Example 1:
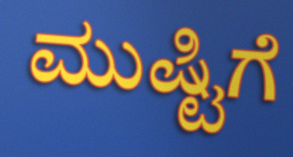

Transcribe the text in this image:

ಮುಷ್ಟಿಗೆ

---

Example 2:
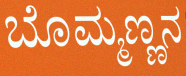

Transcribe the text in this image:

ಬೊಮ್ಮಣ್ಣನ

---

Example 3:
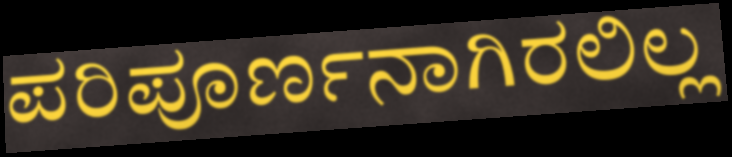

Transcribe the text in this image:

ಪರಿಪೂರ್ಣನಾಗಿರಲಿಲ್ಲ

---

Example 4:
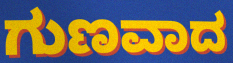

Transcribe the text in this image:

ಗುಣವಾದ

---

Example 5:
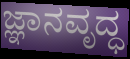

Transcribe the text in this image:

ಜ್ಞಾನವೃದ್ಧ